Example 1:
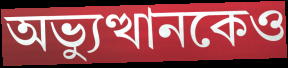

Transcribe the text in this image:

অভ্যুত্থানকেও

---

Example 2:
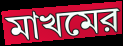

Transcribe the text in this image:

মাখমের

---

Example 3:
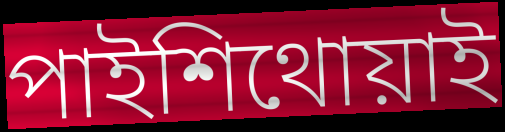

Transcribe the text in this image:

পাইশিথোয়াই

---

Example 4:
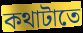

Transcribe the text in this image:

কথাটাতে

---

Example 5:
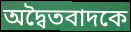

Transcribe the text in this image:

অদ্বৈতবাদকে